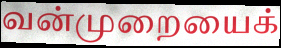
வன்முறையைக்